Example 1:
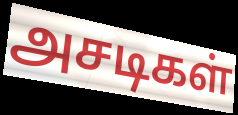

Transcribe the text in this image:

அசடிகள்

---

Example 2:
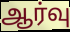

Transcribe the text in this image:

ஆர்வு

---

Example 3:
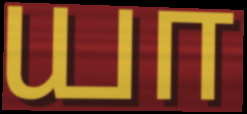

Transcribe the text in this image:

யா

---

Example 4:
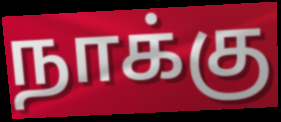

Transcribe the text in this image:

நாக்கு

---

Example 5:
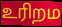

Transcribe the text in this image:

உரிறம